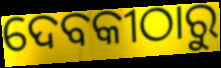
ଦେବକୀଠାରୁ